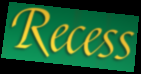
Recess